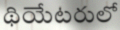
థియేటరులో